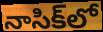
నాసిక్‌లో